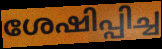
ശേഷിപ്പിച്ച